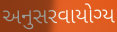
અનુસરવાયોગ્ય